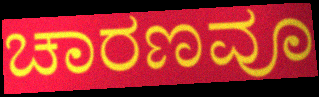
ಚಾರಣವೂ